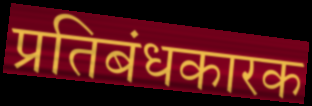
प्रतिबंधकारक